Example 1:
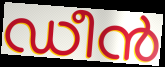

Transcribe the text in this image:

ഡീൻ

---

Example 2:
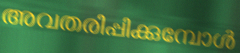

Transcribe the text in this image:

അവതരിപ്പിക്കുമ്പോൾ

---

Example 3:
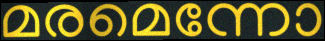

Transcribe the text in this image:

മരമെന്നോ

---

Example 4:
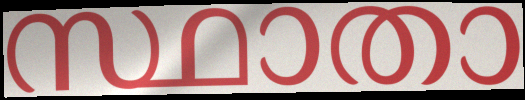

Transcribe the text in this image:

സ്ഥാതാ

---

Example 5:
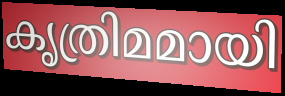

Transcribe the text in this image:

കൃത്രിമമായി